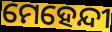
ମେହେନ୍ଦୀ